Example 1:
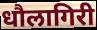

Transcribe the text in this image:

धौलागिरी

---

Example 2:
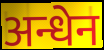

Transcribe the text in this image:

अन्धेन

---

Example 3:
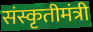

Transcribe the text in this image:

संस्कृतीमंत्री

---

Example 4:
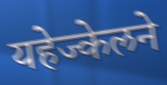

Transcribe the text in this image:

यहेज्केलने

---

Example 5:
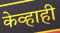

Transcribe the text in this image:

केव्हाही